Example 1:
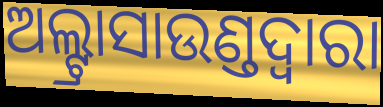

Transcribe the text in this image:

ଅଲ୍ଟ୍ରାସାଉଣ୍ଡଦ୍ୱାରା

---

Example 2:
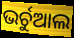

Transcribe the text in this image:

ଭର୍ଚୁଆଲ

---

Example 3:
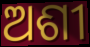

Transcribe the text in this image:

ଅଶୀ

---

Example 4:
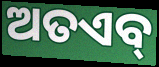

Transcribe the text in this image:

ଅତଏବ୍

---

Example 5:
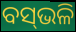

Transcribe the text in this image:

ବସ୍‌ଭଳି